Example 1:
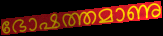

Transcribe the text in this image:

ഭോഷത്തമാണു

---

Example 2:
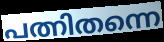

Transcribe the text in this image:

പത്നിതന്നെ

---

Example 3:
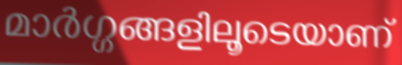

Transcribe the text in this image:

മാർഗ്ഗങ്ങളിലൂടെയാണ്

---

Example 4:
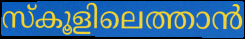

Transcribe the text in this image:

സ്കൂളിലെത്താൻ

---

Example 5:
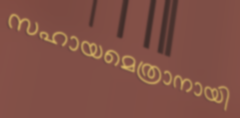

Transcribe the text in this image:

സഹായമെത്രാനായി